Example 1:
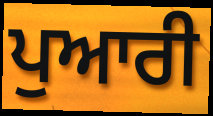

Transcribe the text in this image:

ਪੁਆਰੀ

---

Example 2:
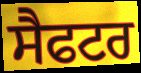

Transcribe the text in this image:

ਸੈਫਟਰ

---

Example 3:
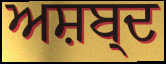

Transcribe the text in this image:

ਅਸ਼ਬ੍ਦ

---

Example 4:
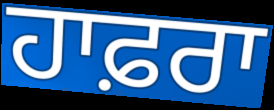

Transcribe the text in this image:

ਹਾਫ਼ਰਾ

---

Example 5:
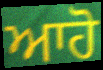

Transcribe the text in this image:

ਆਹੋ